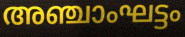
അഞ്ചാംഘട്ടം